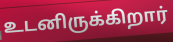
உடனிருக்கிறார்